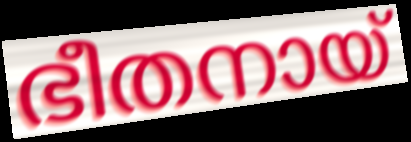
ഭീതനായ്